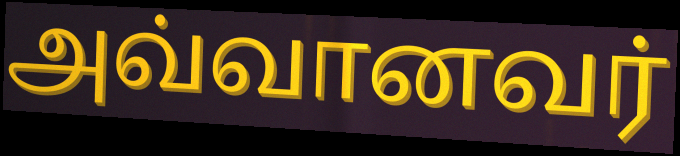
அவ்வானவர்